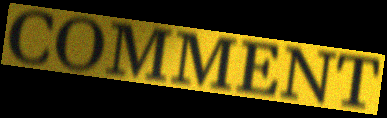
COMMENT